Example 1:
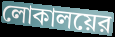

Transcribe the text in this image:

লোকালয়ের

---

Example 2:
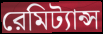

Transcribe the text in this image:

রেমিট্যান্স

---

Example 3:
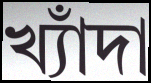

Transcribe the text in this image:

খ্যাঁদা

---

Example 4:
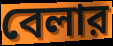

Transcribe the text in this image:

বেলার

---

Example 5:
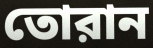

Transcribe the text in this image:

তোরান